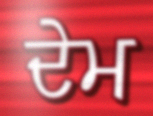
ਦੇਮ